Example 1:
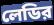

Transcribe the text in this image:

লেডির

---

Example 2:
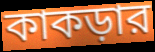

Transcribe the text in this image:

কাকড়ার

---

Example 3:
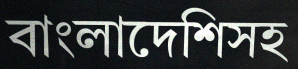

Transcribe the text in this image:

বাংলাদেশিসহ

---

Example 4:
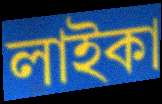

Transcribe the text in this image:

লাইকা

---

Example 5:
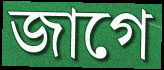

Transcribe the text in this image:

জাগে